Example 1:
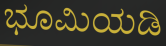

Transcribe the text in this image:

ಭೂಮಿಯಡಿ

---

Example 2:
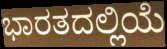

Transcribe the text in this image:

ಭಾರತದಲ್ಲಿಯೆ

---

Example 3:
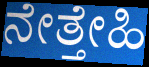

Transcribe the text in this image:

ನೇತ್ತೇಹಿ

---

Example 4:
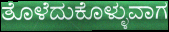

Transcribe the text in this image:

ತೊಳೆದುಕೊಳ್ಳುವಾಗ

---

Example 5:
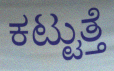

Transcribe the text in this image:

ಕಟ್ಟುತ್ತೆ